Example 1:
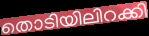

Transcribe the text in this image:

തൊടിയിലിറക്കി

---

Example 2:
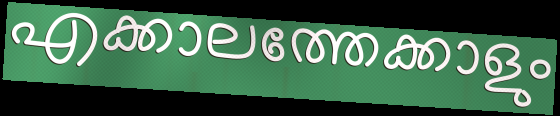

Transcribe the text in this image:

എക്കാലത്തേക്കാളും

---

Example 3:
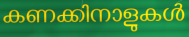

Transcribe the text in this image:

കണക്കിനാളുകൾ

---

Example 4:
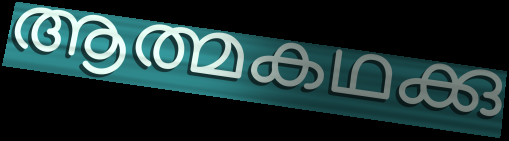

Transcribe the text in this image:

ആത്മകഥക്കു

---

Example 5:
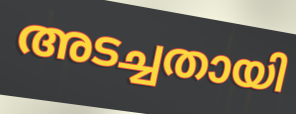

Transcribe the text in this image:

അടച്ചതായി